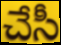
చేసీ